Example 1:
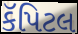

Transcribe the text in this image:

કૅપિટલ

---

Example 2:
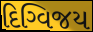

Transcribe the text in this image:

દિગ્વિજય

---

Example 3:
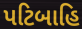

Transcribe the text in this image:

પટિબાહિ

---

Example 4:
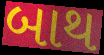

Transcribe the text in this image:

બાથ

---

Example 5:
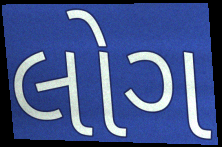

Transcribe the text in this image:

લોગ